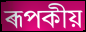
ৰূপকীয়